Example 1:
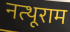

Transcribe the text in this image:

नत्थूराम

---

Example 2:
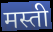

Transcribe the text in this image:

मस्ती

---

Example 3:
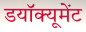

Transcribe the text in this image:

डयॉक्‍यूमेंट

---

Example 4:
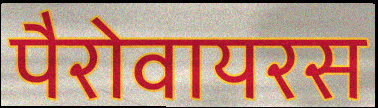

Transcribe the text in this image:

पैरोवायरस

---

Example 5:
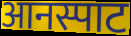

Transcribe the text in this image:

आनस्पाट